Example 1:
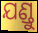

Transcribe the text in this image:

ଯଣ୍ଡୁ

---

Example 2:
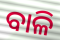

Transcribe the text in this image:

ବାଳି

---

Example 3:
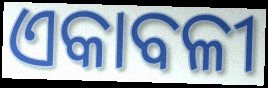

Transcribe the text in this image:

ଏକାବଳୀ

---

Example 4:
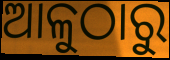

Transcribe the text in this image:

ଆଳୁଠାରୁ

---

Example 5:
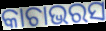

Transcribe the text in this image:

କାଚାଭରସ